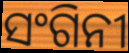
ସଂଗିନୀ